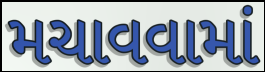
મચાવવામાં